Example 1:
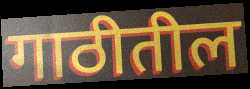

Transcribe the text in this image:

गाठीतील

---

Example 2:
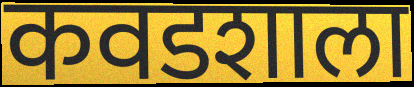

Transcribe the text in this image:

कवडशाला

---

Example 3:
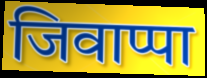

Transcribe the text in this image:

जिवाप्पा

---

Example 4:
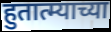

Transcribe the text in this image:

हुतात्म्याच्या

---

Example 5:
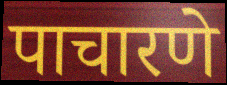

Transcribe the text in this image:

पाचारणे